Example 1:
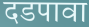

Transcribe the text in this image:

दडपावा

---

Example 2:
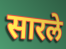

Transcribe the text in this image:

सारले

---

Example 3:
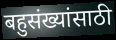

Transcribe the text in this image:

बहुसंख्यांसाठी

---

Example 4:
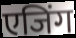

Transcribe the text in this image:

एजिंग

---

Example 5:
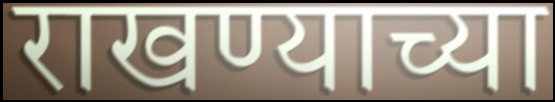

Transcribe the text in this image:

राखण्याच्या